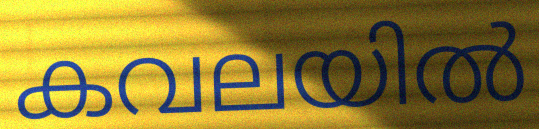
കവലയിൽ